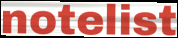
notelist